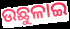
ଉଛୁଳାଇ